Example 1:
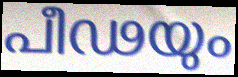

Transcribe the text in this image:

പീഢയും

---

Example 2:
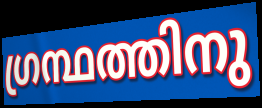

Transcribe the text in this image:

ഗ്രന്ഥത്തിനു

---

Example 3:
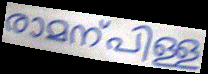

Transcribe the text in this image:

രാമന്പിള്ള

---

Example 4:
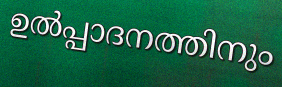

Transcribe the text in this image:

ഉൽപ്പാദനത്തിനും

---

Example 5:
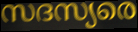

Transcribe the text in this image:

സദസ്യരെ